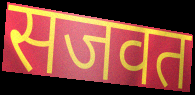
सजवत